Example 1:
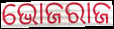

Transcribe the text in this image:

ଭୋଜରାଜ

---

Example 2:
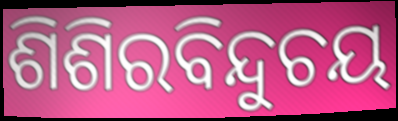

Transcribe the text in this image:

ଶିଶିରବିନ୍ଦୁଚୟ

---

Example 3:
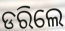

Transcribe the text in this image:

ଡରିଲେ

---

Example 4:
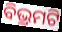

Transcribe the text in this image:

ବିଭ୍ରମଟି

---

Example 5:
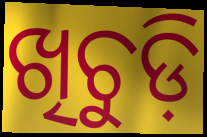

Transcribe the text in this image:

ଖିଚୁଡ଼ି